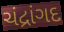
ચંદ્રાંગદ